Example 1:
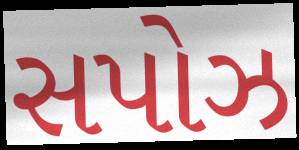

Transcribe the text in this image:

સપોઝ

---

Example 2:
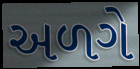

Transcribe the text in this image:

અળગે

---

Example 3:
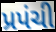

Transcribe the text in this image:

પ્રપંચી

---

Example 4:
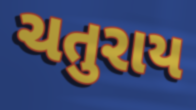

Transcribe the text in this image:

ચતુરાય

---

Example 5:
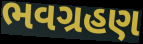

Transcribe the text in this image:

ભવગ્રહણ